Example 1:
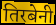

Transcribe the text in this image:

तिरबेनी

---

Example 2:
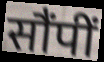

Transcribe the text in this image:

सौंपीं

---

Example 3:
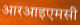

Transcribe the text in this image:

आरआइएमसी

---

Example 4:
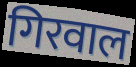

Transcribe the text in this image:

गिरवाल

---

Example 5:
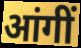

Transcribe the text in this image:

आंगीं